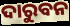
ଦାରୁବନ